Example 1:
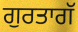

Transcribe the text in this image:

ਗੁਰਤਾਗੱ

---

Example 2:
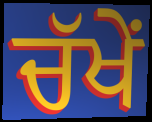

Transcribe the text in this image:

ਚੱਖੇਂ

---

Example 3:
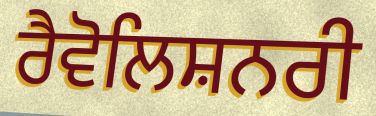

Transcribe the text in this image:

ਰੈਵੋਲਿਸ਼ਨਰੀ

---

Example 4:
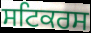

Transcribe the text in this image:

ਸਟਿਕਰਸ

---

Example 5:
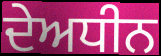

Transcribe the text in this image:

ਦੇਅਧੀਨ